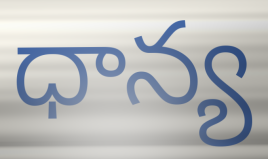
ధాన్య